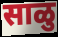
साळु